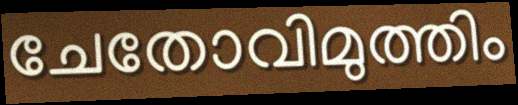
ചേതോവിമുത്തിം